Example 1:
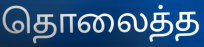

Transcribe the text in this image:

தொலைத்த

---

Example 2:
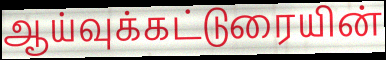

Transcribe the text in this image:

ஆய்வுக்கட்டுரையின்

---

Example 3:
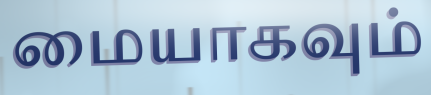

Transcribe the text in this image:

மையாகவும்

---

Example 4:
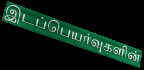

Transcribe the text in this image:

இடப்பெயர்வுகளின்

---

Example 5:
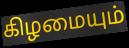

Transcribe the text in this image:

கிழமையும்